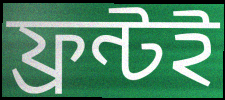
ফ্রন্টই